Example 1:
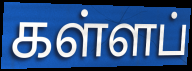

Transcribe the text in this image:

கள்ளப்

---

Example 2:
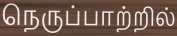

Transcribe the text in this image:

நெருப்பாற்றில்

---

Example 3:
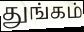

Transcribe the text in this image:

துங்கம்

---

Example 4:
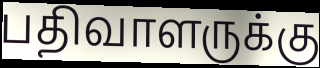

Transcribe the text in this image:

பதிவாளருக்கு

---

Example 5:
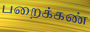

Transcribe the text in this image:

பறைக்கண்